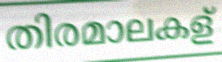
തിരമാലകള്